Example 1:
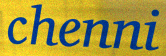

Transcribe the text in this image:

chenni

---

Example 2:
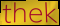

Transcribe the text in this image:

thek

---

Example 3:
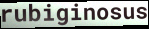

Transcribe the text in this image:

rubiginosus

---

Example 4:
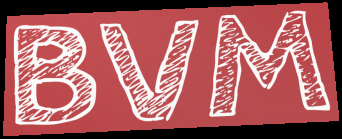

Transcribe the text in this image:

BVM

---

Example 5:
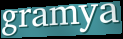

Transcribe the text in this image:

gramya